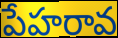
పేహరావ